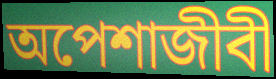
অপেশাজীবী